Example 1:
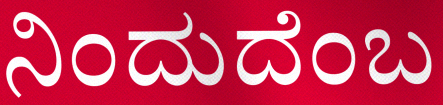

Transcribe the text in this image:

ನಿಂದುದೆಂಬ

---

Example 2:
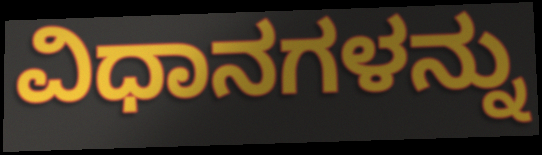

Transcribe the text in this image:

ವಿಧಾನಗಳನ್ನು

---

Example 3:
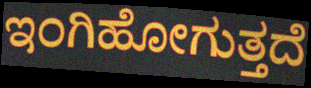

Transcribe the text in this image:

ಇಂಗಿಹೋಗುತ್ತದೆ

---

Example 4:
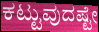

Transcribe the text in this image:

ಕಟ್ಟುವುದಷ್ಟೇ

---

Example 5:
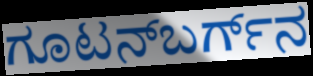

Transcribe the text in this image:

ಗೂಟನ್‌ಬರ್ಗ್‌ನ